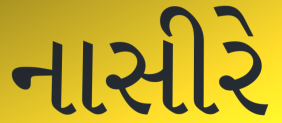
નાસીરે